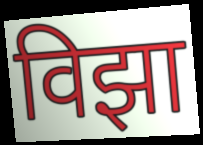
विझा